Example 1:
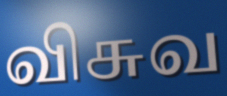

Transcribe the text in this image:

விசுவ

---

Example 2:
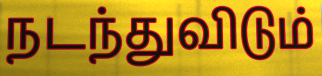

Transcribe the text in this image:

நடந்துவிடும்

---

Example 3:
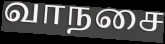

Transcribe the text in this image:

வாநசை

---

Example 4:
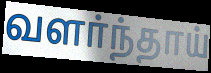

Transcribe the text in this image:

வளர்ந்தாய்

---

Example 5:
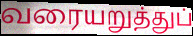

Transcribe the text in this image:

வரையறுத்துப்